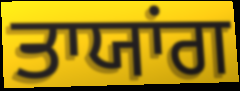
ਤਾਯਾਂਗ